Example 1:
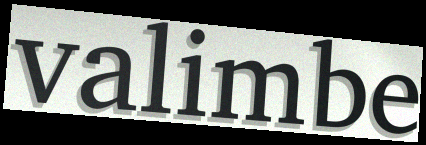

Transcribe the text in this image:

valimbe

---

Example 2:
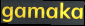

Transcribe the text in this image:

gamaka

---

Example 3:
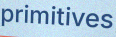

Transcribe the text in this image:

primitives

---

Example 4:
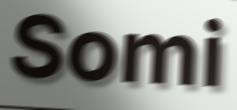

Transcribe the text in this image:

Somi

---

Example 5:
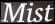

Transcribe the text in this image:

Mist